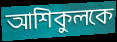
আশিকুলকে